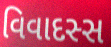
વિવાદસ્સ